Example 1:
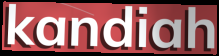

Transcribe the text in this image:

kandiah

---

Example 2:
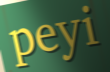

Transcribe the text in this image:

peyi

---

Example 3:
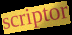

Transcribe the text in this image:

scriptor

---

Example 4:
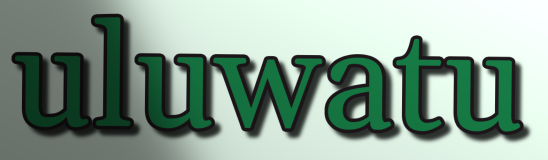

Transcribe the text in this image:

uluwatu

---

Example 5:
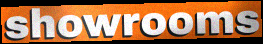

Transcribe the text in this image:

showrooms